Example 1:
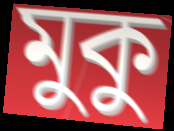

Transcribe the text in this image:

মুকু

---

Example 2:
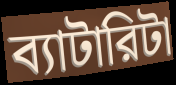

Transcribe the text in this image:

ব্যাটারিটা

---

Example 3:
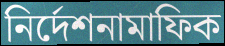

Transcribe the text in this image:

নির্দেশনামাফিক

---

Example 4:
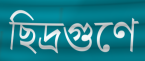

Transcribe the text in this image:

ছিদ্রগুণে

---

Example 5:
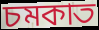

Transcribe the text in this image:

চমকাত